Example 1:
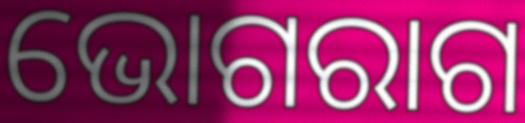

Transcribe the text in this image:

ଭୋଗରାଗ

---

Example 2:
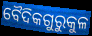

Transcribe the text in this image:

ବୈଦିକଗୁରୁକୁଳ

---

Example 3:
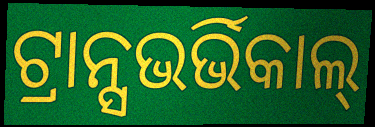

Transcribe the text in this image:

ଟ୍ରାନ୍ସଭର୍ଭିକାଲ୍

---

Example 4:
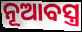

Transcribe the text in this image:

ନୂଆବସ୍ତ୍ର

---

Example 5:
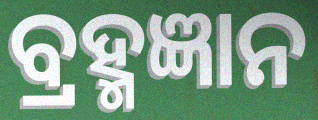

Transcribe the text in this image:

ବ୍ରହ୍ମଜ୍ଞାନ